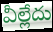
వీల్లేదు